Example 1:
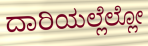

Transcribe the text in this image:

ದಾರಿಯಲ್ಲೆಲ್ಲೋ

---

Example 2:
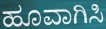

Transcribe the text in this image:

ಹೂವಾಗಿಸಿ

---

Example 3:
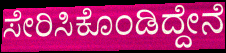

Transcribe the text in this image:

ಸೇರಿಸಿಕೊಂಡಿದ್ದೇನೆ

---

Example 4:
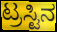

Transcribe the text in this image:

ಟ್ರಸ್ಟಿನ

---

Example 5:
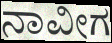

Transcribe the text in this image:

ನಾವೀಗ